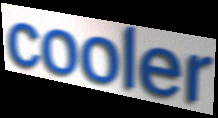
cooler